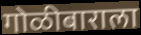
गोळीबाराला